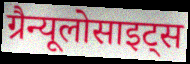
ग्रैन्यूलोसाइट्स